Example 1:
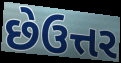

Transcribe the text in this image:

છેઉત્તર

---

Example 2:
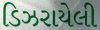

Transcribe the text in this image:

ડિઝરાયેલી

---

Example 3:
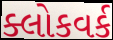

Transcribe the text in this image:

ક્લોકવર્ક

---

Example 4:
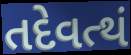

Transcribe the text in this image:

તદેવત્થં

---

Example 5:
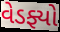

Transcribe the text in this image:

વેડફ્યો